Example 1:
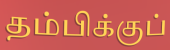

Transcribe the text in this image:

தம்பிக்குப்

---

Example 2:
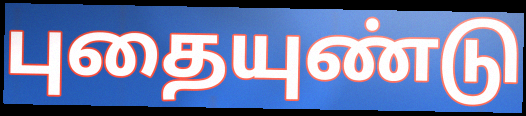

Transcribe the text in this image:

புதையுண்டு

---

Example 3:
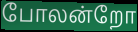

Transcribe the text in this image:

போலன்றோ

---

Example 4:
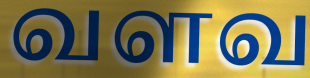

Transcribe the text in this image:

வளவ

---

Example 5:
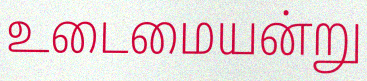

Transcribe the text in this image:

உடைமையன்று